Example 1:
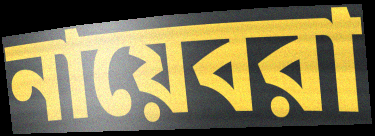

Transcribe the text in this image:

নায়েবরা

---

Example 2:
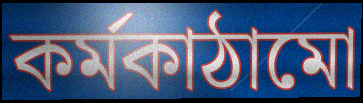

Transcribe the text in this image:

কর্মকাঠামো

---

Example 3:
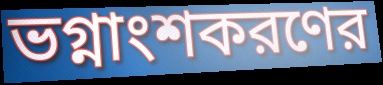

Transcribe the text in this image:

ভগ্নাংশকরণের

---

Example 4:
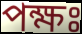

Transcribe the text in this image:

পক্ষঃ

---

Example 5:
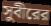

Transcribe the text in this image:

সুবীরের